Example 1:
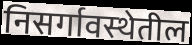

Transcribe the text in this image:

निसर्गावस्थेतील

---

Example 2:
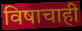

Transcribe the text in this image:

विषाचाही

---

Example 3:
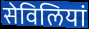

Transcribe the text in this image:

सेविलियां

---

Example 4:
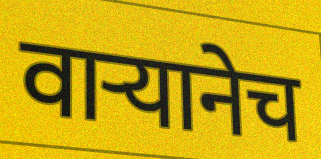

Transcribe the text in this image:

वाऱ्यानेच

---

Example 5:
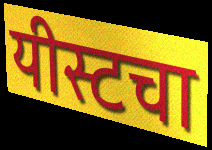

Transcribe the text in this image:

यीस्टचा